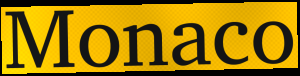
Monaco